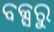
ବକ୍ସରୁ